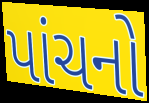
પાંચનો